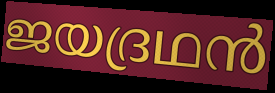
ജയദ്രഥൻ